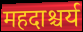
महदाश्चर्य